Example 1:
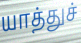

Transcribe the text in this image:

யாத்துச்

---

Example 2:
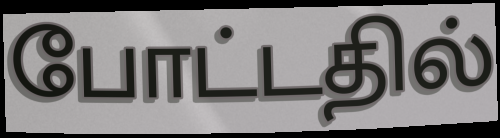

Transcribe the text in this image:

போட்டதில்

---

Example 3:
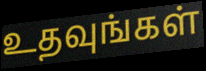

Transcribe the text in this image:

உதவுங்கள்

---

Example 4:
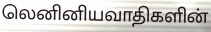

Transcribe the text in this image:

லெனினியவாதிகளின்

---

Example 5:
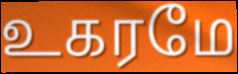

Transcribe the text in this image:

உகரமே